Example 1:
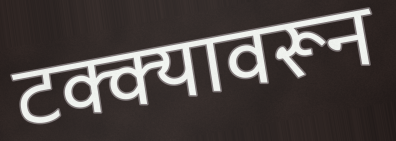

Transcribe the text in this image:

टक्क्यावरून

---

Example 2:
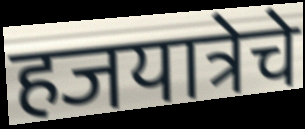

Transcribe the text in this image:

हजयात्रेचे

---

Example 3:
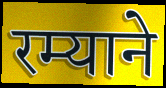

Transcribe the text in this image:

रम्याने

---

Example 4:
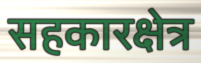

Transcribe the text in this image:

सहकारक्षेत्र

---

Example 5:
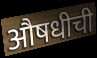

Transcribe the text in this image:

औषधीची